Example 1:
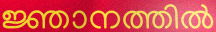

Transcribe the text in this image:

ജ്ഞാനത്തിൽ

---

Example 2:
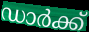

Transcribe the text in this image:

ഡാർക്ക്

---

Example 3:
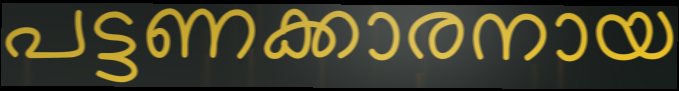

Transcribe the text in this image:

പട്ടണക്കാരനായ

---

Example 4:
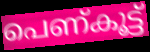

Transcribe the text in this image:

പെണ്കൂട്ട്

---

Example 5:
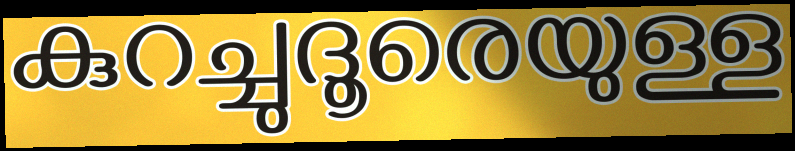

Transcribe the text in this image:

കുറച്ചുദൂരെയുള്ള